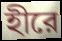
হীরে